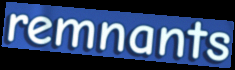
remnants